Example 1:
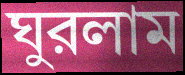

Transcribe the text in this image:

ঘুরলাম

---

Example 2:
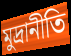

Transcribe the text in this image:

মুদ্রানীতি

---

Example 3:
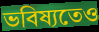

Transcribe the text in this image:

ভবিষ্যতেও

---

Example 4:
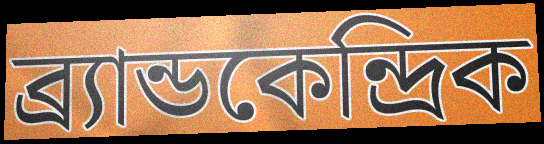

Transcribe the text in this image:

ব্র্যান্ডকেন্দ্রিক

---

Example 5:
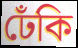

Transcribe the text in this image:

ঢেঁকি